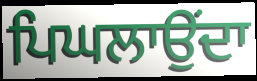
ਪਿਘਲਾਉਂਦਾ